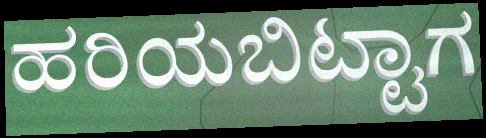
ಹರಿಯಬಿಟ್ಟಾಗ